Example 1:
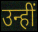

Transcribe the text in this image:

उन्हीं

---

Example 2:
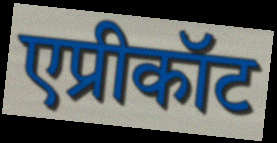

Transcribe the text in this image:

एप्रीकॉट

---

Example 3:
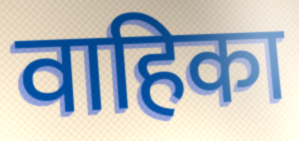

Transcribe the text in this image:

वाहिका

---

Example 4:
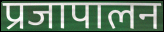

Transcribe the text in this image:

प्रजापालन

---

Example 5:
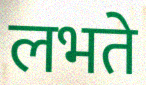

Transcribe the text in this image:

लभते